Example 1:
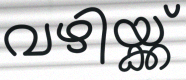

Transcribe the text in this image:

വഴിയ്ക്ക്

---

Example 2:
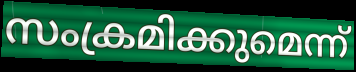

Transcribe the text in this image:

സംക്രമിക്കുമെന്ന്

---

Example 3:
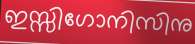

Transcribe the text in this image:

ഇസ്സിഗോനിസിനു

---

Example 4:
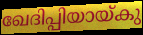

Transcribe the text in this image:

ഖേദിപ്പിയായ്കു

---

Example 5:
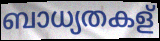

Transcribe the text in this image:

ബാധ്യതകള്